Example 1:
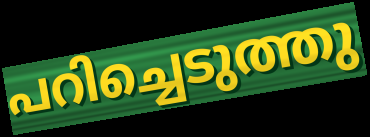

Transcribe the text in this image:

പറിച്ചെടുത്തു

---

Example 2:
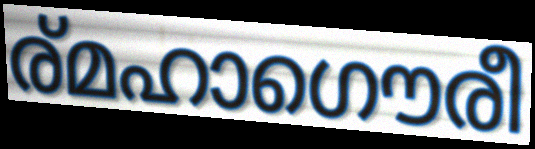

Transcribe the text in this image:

ര്മഹാഗൌരീ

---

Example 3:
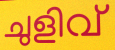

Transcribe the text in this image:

ചുളിവ്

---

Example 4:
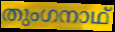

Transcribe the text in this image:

തുംഗനാഥ്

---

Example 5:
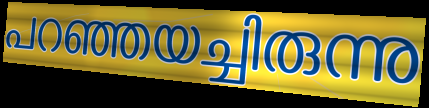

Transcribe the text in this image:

പറഞ്ഞയച്ചിരുന്നു